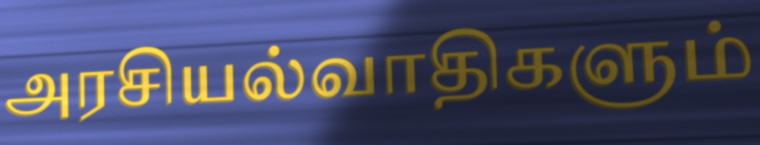
அரசியல்வாதிகளும்